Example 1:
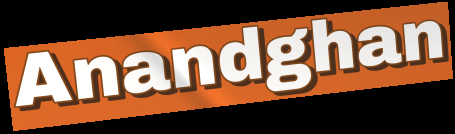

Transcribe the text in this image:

Anandghan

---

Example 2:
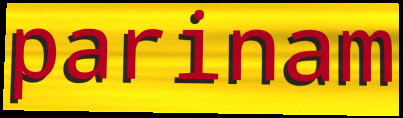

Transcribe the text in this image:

parinam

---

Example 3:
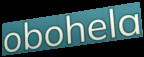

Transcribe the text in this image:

obohela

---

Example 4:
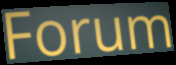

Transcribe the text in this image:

Forum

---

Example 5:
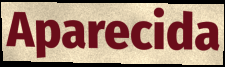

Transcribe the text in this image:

Aparecida